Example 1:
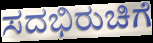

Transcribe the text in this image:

ಸದಭಿರುಚಿಗೆ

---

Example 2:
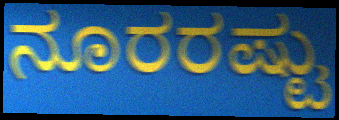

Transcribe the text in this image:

ನೂರರಷ್ಟು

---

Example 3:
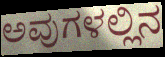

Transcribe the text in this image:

ಅವುಗಳಲ್ಲಿನ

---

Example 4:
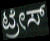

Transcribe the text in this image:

ಟ್ರೇಸ್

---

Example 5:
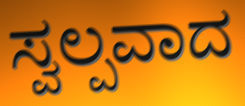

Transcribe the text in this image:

ಸ್ವಲ್ಪವಾದ